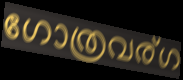
ഗോത്രവര്ഗ